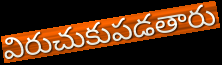
విరుచుకుపడతారు